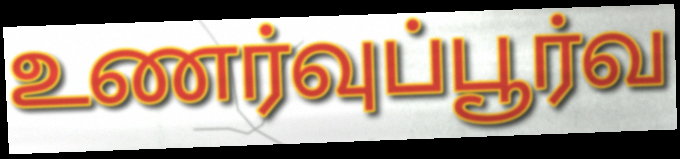
உணர்வுப்பூர்வ